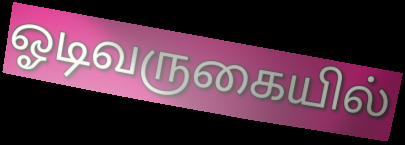
ஓடிவருகையில்